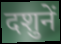
दशुनें